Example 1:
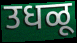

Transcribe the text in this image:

उधळू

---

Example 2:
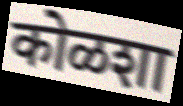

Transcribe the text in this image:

कोळशा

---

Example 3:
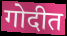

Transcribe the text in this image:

गोदीत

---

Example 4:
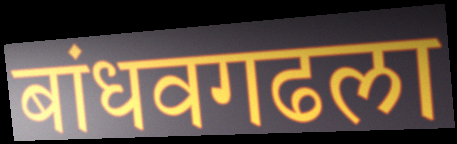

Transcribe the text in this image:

बांधवगढला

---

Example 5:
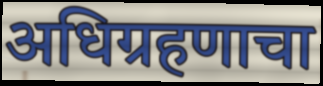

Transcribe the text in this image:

अधिग्रहणाचा